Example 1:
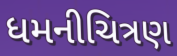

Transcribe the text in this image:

ધમનીચિત્રણ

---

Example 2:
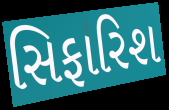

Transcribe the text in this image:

સિફારિશ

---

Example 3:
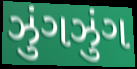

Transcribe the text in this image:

ઝુંગઝુંગ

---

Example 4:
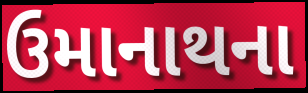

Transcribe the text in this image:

ઉમાનાથના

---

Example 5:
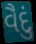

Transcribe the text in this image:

વૈદું